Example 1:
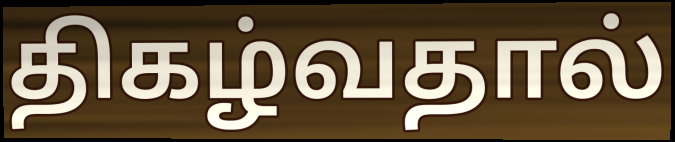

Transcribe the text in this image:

திகழ்வதால்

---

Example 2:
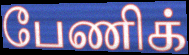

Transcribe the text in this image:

பேணிக்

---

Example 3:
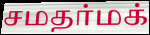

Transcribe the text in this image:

சமதர்மக்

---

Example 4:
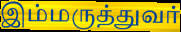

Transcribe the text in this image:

இம்மருத்துவர்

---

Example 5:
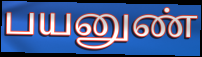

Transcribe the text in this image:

பயனுண்